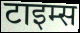
टाइम्‍स